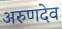
अरुणदेव